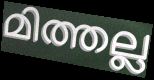
മിത്തല്ല